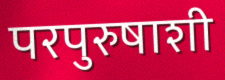
परपुरुषाशी